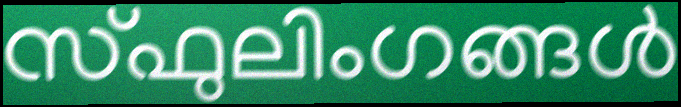
സ്ഫുലിംഗങ്ങൾ